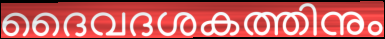
ദൈവദശകത്തിനും